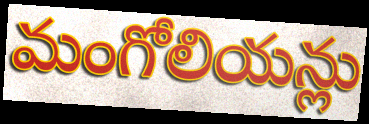
మంగోలియన్లు